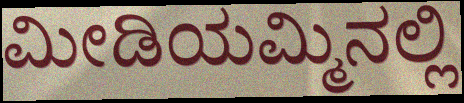
ಮೀಡಿಯಮ್ಮಿನಲ್ಲಿ